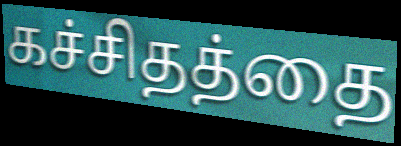
கச்சிதத்தை